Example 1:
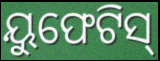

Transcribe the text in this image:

ୟୁଫେଟିସ୍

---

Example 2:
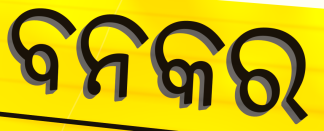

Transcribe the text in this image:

ବନକର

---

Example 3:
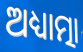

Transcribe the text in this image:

ଅଧ୍ୟାତ୍ମା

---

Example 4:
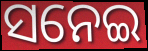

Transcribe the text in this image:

ସନେଇ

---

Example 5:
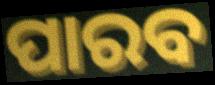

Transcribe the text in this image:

ପାରବ